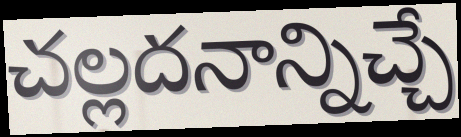
చల్లదనాన్నిచ్చే